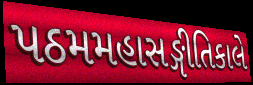
પઠમમહાસઙ્ગીતિકાલે